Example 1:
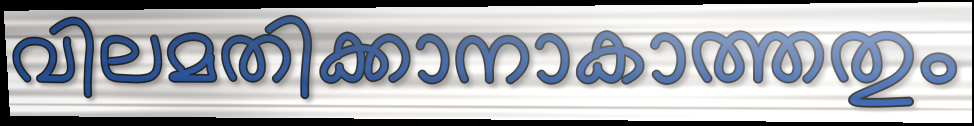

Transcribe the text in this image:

വിലമതിക്കാനാകാത്തതും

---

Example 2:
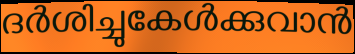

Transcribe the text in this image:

ദർശിച്ചുകേൾക്കുവാൻ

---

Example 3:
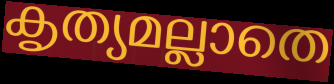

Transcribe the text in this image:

കൃത്യമല്ലാതെ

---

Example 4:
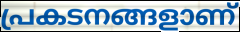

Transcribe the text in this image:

പ്രകടനങ്ങളാണ്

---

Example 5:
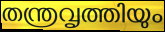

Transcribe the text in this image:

തന്ത്രവൃത്തിയും